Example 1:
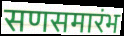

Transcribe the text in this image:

सणसमारंभ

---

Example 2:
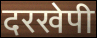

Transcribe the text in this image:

दरखेपी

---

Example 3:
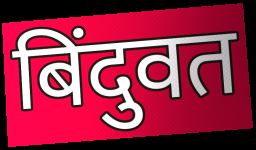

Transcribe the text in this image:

बिंदुवत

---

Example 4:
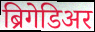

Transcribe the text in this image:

ब्रिगेडिअर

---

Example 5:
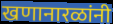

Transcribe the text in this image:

खणानारळांनी